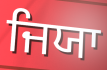
ਜਿਯਾ